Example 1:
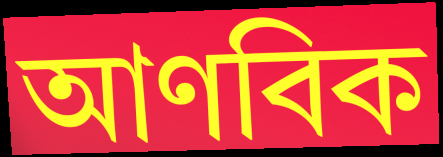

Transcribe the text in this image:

আণবিক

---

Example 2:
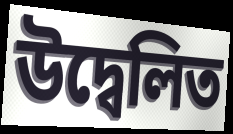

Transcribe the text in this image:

উদ্বেলিত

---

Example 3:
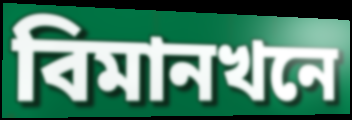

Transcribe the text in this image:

বিমানখনে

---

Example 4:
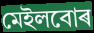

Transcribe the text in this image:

মেইলবোৰ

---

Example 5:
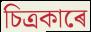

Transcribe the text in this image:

চিত্ৰকাৰে